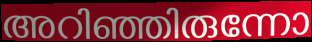
അറിഞ്ഞിരുന്നോ